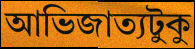
আভিজাত্যটুকু